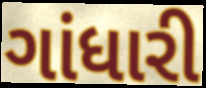
ગાંધારી